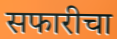
सफारीचा